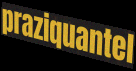
praziquantel